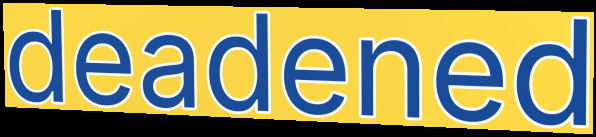
deadened